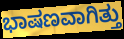
ಭಾಷಣವಾಗಿತ್ತು